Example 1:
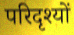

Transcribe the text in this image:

परिदृश्यों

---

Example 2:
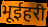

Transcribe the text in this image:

भूईहरी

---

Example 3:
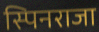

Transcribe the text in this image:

स्पिनराजा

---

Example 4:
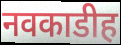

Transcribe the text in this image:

नवकाडीह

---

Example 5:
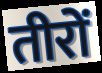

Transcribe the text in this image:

तीरों